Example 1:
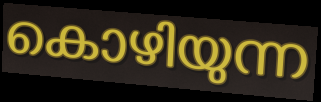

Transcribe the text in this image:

കൊഴിയുന്ന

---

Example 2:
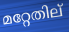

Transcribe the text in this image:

മറ്റേതില്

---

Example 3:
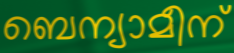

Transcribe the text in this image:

ബെന്യാമീന്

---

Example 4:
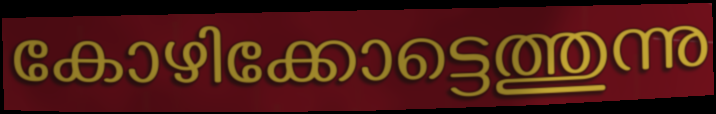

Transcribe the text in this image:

കോഴിക്കോട്ടെത്തുന്നു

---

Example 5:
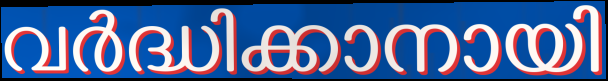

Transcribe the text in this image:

വർദ്ധിക്കാനായി